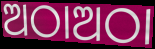
ଅଠାଅଠା